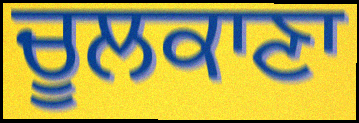
ਚੂਲਕਾਣਾ